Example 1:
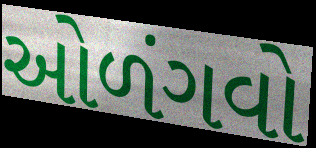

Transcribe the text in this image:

ઓળંગવો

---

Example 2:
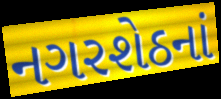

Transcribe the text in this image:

નગરશેઠનાં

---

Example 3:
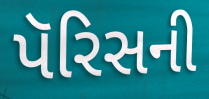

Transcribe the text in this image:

પૅરિસની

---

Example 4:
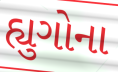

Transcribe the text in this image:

હ્યુગોના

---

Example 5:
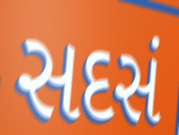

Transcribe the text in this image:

સદસં